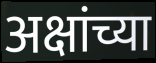
अक्षांच्या